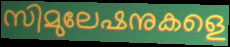
സിമുലേഷനുകളെ